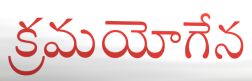
క్రమయోగేన